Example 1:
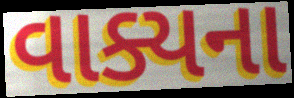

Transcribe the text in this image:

વાક્યના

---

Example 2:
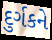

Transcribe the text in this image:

દુર્ગકને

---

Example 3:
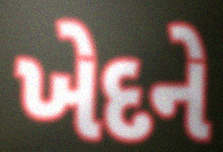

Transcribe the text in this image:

ખેદને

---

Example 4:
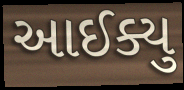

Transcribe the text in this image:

આઈક્યુ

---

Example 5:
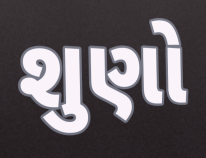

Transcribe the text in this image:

શુણો